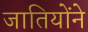
जातियोंने